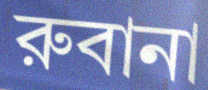
রুবানা